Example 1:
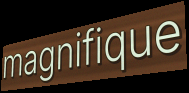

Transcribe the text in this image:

magnifique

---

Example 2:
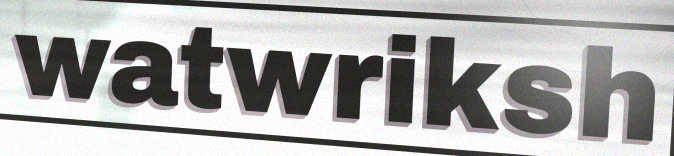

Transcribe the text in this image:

watwriksh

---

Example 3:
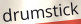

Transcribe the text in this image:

drumstick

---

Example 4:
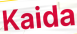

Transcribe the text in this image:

Kaida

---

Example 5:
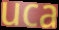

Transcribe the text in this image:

uca